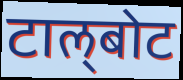
टाल्बोट